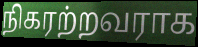
நிகரற்றவராக